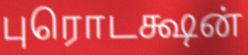
புரொடக்ஷன்